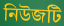
নিউজটি